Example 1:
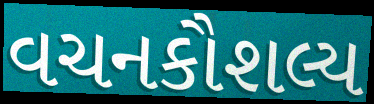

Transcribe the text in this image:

વચનકૌશલ્ય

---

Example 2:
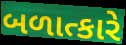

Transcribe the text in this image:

બળાત્કારે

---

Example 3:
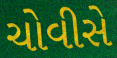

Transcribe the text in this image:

ચોવીસે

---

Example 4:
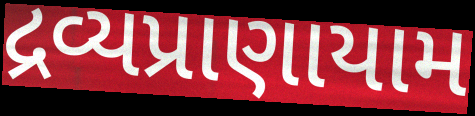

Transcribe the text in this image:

દ્રવ્યપ્રાણાયામ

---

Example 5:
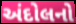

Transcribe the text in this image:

અંદોલનો